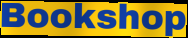
Bookshop